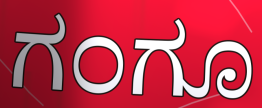
ಗಂಗೂ